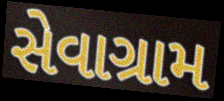
સેવાગ્રામ